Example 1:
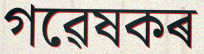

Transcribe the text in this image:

গৱেষকৰ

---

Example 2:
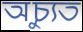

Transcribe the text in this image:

অচ্যুত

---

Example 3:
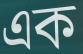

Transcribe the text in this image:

এক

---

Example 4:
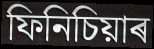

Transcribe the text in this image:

ফিনিচিয়াৰ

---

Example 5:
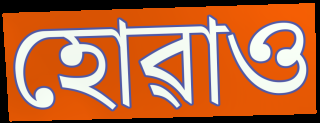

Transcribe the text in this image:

হোৱাও